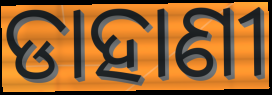
ଡାହାଣୀ